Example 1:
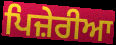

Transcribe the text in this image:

ਪਿਜ਼ੇਰੀਆ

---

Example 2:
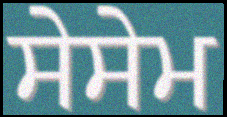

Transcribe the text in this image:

ਸੇਸੇਮ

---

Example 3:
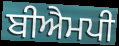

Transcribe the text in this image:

ਬੀਐਮਪੀ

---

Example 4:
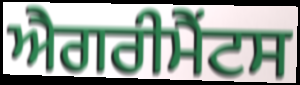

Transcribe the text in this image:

ਐਗਰੀਮੈਂਟਸ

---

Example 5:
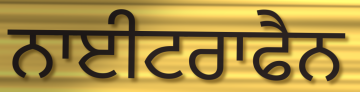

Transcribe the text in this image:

ਨਾਈਟਰਾਫੈਨ